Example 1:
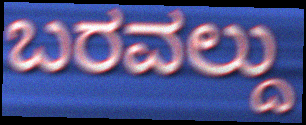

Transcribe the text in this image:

ಬರವಲ್ದು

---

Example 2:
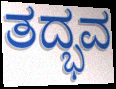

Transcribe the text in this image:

ತದ್ಭವ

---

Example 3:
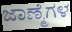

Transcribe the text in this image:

ಜಾಣ್ಮೆಗಳ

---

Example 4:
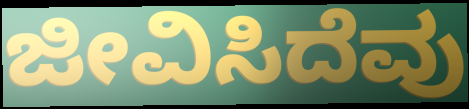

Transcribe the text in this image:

ಜೀವಿಸಿದೆವು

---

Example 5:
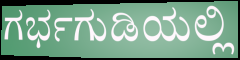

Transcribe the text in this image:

ಗರ್ಭಗುಡಿಯಲ್ಲಿ